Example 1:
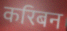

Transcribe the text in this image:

करिबन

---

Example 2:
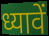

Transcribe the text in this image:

ध्यावें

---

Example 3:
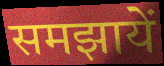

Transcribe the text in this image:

समझायें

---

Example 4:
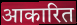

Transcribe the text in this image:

आकारित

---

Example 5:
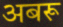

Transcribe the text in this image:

अबरू